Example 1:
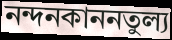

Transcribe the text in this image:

নন্দনকাননতুল্য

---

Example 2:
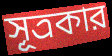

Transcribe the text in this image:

সূত্রকার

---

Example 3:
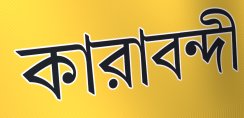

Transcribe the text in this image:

কারাবন্দী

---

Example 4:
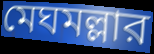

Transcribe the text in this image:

মেঘমল্লার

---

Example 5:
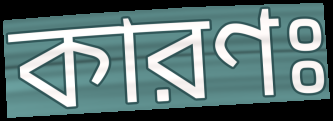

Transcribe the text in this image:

কারণঃ